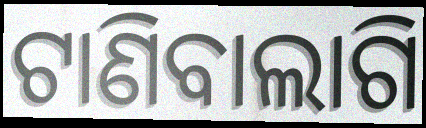
ଟାଣିବାଲାଗି